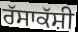
ਰੱਸਾਕੱਸ਼ੀ